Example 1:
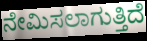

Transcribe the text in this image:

ನೇಮಿಸಲಾಗುತ್ತಿದೆ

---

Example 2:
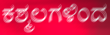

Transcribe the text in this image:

ಕಶ್ಮಲಗಳಿಂದ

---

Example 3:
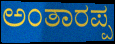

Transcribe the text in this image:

ಅಂತಾರಪ್ಪ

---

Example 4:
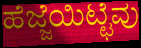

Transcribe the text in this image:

ಹೆಜ್ಜೆಯಿಟ್ಟೆವು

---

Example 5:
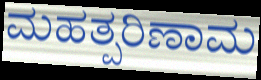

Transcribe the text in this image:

ಮಹತ್ಪರಿಣಾಮ